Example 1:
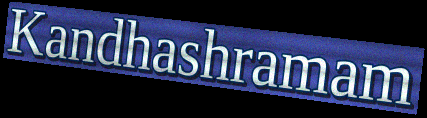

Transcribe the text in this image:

Kandhashramam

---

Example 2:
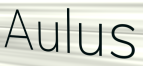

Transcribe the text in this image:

Aulus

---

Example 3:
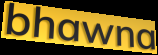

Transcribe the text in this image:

bhawna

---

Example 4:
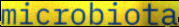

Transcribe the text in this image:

microbiota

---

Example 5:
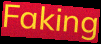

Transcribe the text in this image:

Faking